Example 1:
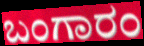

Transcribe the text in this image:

ಬಂಗಾರಂ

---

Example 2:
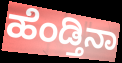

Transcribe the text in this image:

ಹೆಂಡ್ತಿನಾ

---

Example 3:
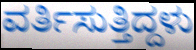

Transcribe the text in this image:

ವರ್ತಿಸುತ್ತಿದ್ದಳು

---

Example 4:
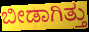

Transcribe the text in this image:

ಬೀಡಾಗಿತ್ತು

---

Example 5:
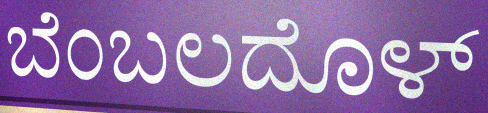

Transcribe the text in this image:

ಬೆಂಬಲದೊಳ್